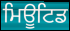
ਮਿਊਟਿਡ